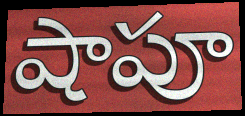
షాపూ